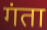
गंता